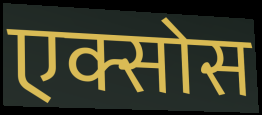
एक्सोस